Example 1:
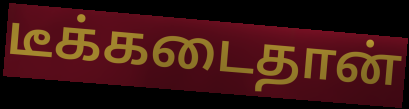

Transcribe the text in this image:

டீக்கடைதான்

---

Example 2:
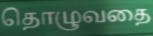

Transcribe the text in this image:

தொழுவதை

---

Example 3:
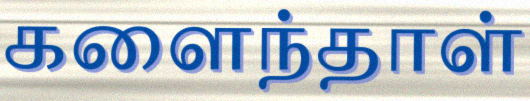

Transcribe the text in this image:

களைந்தாள்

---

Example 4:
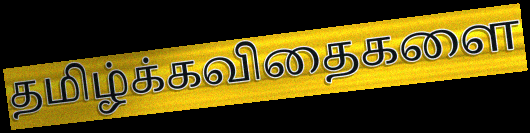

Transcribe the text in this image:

தமிழ்க்கவிதைகளை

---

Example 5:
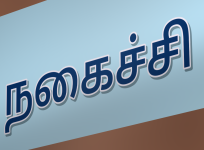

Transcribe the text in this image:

நகைச்சி